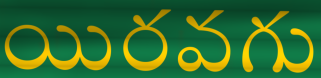
యిరవగు